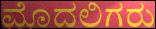
ಮೊದಲಿಗರು